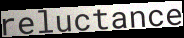
reluctance